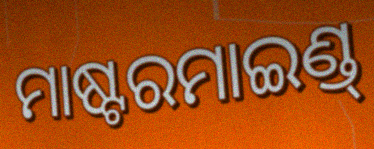
ମାଷ୍ଟରମାଇଣ୍ଡ୍